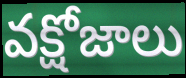
వక్షోజాలు